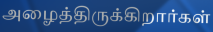
அழைத்திருக்கிறார்கள்